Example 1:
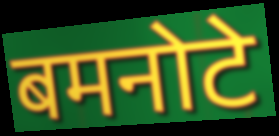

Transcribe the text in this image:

बमनोटे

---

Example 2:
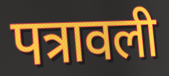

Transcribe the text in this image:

पत्रावली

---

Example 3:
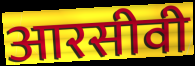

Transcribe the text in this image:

आरसीवी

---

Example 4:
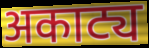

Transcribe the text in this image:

अकाट्य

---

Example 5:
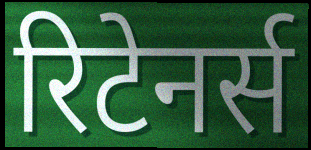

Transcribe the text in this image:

रिटेनर्स